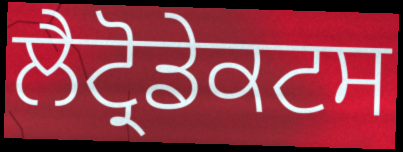
ਲੈਟ੍ਰੋਡੇਕਟਸ